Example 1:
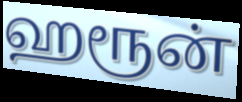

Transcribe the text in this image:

ஹரூன்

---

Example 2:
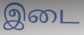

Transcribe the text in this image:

இடை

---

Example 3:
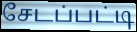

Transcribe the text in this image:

சேடப்பட்டி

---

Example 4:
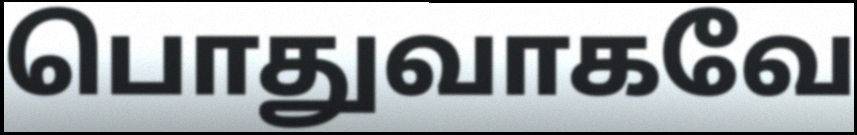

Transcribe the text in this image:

பொதுவாகவே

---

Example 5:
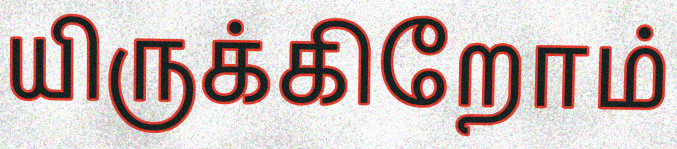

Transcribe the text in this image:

யிருக்கிறோம்